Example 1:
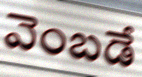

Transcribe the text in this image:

వెంబడే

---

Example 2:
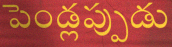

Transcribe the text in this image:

పెండ్లప్పుడు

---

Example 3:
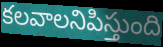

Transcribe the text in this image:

కలవాలనిపిస్తుంది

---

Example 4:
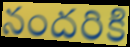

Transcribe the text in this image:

నందరికి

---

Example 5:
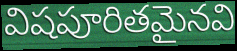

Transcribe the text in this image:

విషపూరితమైనవి